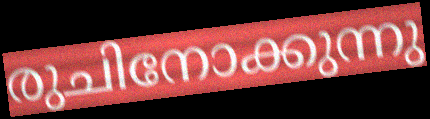
രുചിനോക്കുന്നു